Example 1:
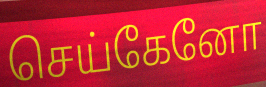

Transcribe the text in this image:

செய்கேனோ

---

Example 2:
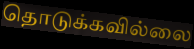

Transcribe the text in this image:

தொடுக்கவில்லை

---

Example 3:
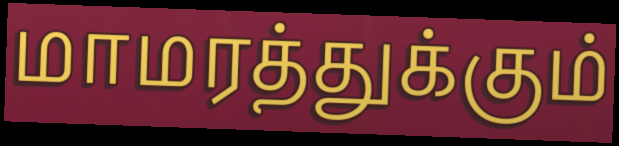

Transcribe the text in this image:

மாமரத்துக்கும்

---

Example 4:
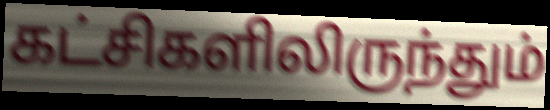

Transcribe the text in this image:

கட்சிகளிலிருந்தும்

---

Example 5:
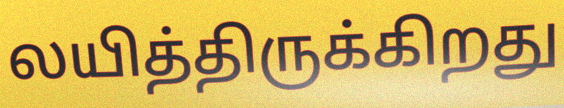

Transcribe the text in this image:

லயித்திருக்கிறது